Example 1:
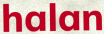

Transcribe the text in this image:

halan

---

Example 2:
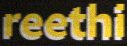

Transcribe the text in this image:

reethi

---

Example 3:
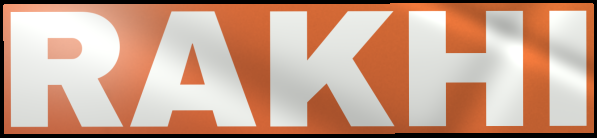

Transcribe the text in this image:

RAKHI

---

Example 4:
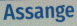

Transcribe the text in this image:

Assange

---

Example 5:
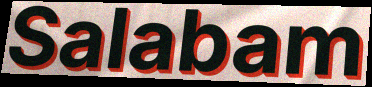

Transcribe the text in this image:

Salabam